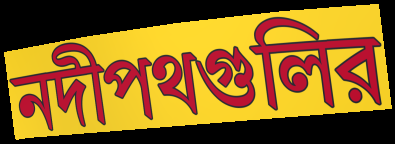
নদীপথগুলির